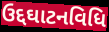
ઉદ્દઘાટનવિધિ